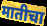
मातीचा